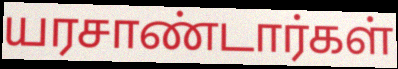
யரசாண்டார்கள்